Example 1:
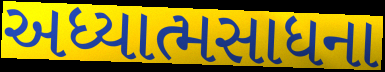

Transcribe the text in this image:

અધ્યાત્મસાધના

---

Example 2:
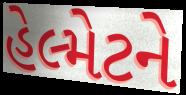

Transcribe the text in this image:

હેલ્મેટને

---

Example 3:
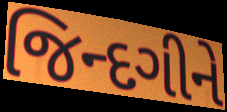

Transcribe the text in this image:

જિન્દગીને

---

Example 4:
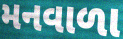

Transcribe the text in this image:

મનવાળા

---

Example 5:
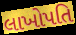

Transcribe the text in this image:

લાખોપતિ